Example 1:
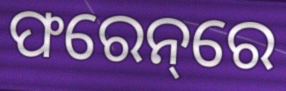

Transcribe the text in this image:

ଫରେନ୍‌ରେ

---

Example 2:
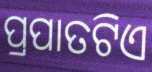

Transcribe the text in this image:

ପ୍ରପାତଟିଏ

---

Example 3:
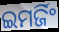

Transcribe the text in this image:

ଇମର୍ଜିଂ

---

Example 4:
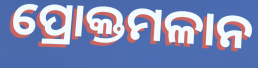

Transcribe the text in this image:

ପ୍ରୋକ୍ତମଳାନ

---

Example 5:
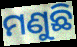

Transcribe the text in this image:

ମଣୁଛି